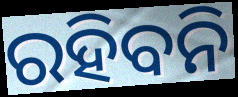
ରହିବନି